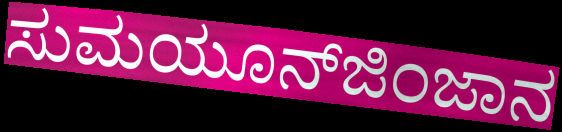
ಸುಮಯೂನ್‍ಜಿಂಜಾನ